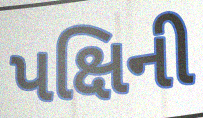
પક્ષિની